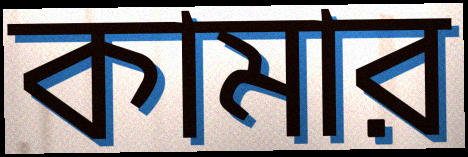
কামার